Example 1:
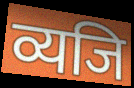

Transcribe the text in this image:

व्यजि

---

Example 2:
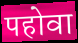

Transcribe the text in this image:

पहोवा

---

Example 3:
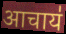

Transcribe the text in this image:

आचाय॑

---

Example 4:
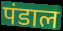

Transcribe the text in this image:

पंडाल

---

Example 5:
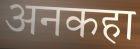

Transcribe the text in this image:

अनकहा